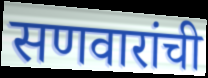
सणवारांची